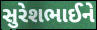
સુરેશભાઈને